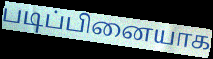
படிப்பினையாக